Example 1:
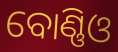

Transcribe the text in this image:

ବୋଣ୍ଣିଓ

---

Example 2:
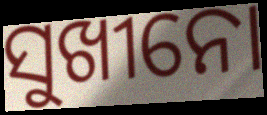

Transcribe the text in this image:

ସୁଖୀନୋ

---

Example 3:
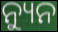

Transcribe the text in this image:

ନ୍ୟୁନ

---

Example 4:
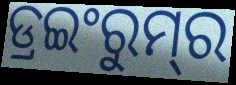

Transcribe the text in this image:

ଡ୍ରଇଂରୁମ୍‌ର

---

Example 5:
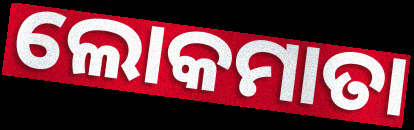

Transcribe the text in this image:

ଲୋକମାତା